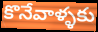
కొనేవాళ్ళకు